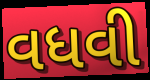
વધવી